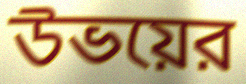
উভয়ের